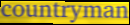
countryman